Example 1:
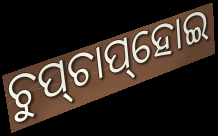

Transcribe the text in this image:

ଚୁପ୍‌ଚାପ୍‌ହୋଇ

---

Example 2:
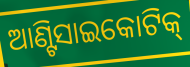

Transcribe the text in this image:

ଆଣ୍ଟିସାଇକୋଟିକ୍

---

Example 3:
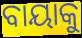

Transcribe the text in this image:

ବାୟାକୁ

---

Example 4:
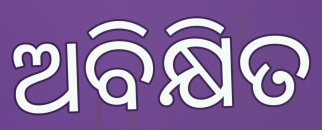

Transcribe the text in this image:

ଅବିକ୍ଷିତ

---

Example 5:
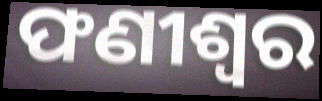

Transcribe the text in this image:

ଫଣୀଶ୍ୱର